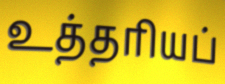
உத்தரியப்